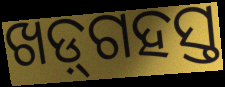
ଖଡ଼୍‌ଗହସ୍ତ